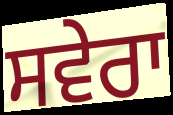
ਸਵੇਰਾ